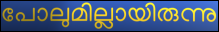
പോലുമില്ലായിരുന്നു